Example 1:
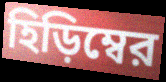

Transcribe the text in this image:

হিড়িম্বের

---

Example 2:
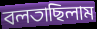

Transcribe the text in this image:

বলতাছিলাম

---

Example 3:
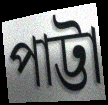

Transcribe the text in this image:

পাট্টা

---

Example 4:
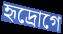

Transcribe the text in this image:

হৃদ্রোগে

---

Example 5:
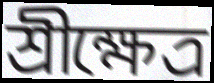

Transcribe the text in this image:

শ্রীক্ষেত্র